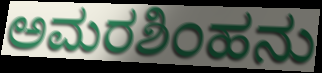
ಅಮರಶಿಂಹನು